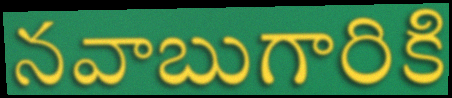
నవాబుగారికి